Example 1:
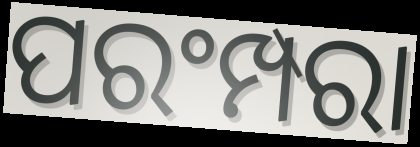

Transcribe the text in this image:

ପରଂମ୍ପରା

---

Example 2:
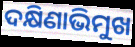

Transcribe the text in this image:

ଦକ୍ଷିଣାଭିମୁଖ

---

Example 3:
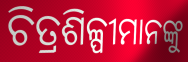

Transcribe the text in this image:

ଚିତ୍ରଶିଳ୍ପୀମାନଙ୍କୁ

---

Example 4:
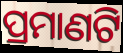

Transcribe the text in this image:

ପ୍ରମାଣଟି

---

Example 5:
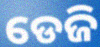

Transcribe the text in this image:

ଡେଜି